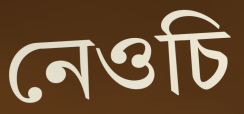
নেওচি